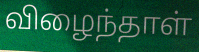
விழைந்தாள்